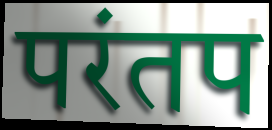
परंतप